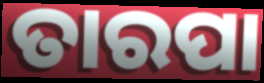
ତାରପା